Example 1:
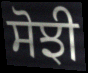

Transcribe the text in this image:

ਸੋਝੀ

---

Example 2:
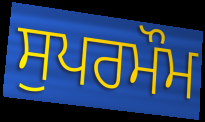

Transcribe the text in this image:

ਸੁਪਰਮੌਮ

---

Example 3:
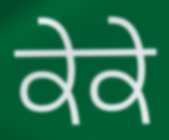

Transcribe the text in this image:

ਕੇਕੇ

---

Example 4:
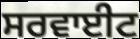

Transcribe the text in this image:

ਸਰਵਾਈਟ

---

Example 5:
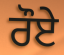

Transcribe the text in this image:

ਰੌਏ